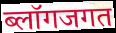
ब्लॉगजगत